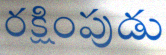
రక్షింపుడు